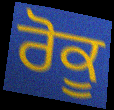
ਰੋਕੂ